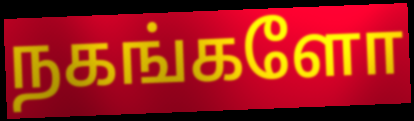
நகங்களோ